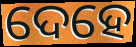
ଦେହେ